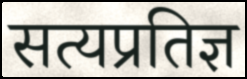
सत्यप्रतिज्ञ